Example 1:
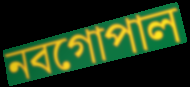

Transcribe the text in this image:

নবগোপাল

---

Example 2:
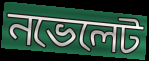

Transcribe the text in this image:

নভেলেট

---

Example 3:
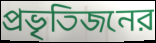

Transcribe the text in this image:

প্রভৃতিজনের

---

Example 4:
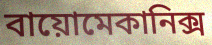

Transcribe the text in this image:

বায়োমেকানিক্স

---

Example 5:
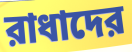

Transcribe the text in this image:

রাধাদের